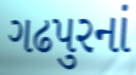
ગઢપુરનાં